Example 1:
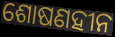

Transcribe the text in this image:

ଶୋଷଣହୀନ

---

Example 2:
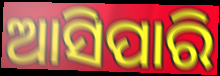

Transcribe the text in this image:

ଆସିପାରି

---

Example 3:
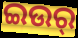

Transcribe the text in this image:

ଇଉର୍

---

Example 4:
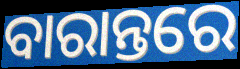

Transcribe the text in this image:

ବାରାନ୍ତରେ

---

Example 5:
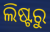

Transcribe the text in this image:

ଲିଷ୍ଟରୁ